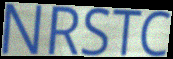
NRSTC